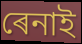
ৰেনাই